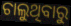
ଚାଲୁଥିବାରୁ